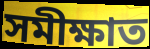
সমীক্ষাত